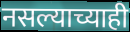
नसल्याच्याही